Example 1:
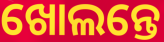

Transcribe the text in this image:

ଖୋଲନ୍ତେ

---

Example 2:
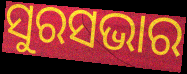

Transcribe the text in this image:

ସୁରସଭାର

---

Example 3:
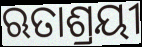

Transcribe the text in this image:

ଋତାଶ୍ରୟୀ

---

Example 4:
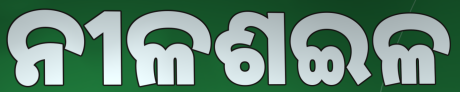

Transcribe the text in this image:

ନୀଳଶଇଳ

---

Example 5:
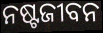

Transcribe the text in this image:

ନଷ୍ଟଜୀବନ